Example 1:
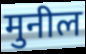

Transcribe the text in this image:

मुनील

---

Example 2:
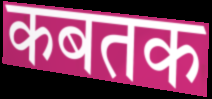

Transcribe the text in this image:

कबतक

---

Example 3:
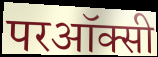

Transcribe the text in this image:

परऑक्सी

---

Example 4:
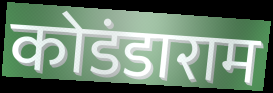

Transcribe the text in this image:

कोडंडाराम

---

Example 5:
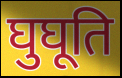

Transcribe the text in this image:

घुघूति